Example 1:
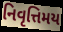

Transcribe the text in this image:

નિવૃત્તિમય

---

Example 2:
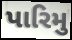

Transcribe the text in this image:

પારિમુ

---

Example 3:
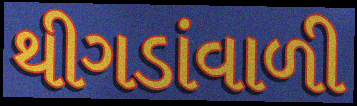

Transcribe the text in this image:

થીગડાંવાળી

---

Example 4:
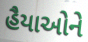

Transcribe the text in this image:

હૈયાઓને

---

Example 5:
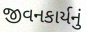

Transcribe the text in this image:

જીવનકાર્યનું